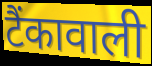
टैंकावाली